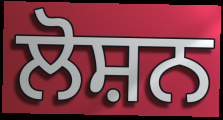
ਲੋਸ਼ਨ